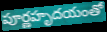
పూర్ణహృదయంతో